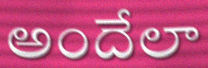
అందేలా